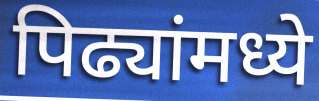
पिढ्यांमध्ये